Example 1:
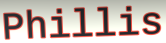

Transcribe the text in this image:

Phillis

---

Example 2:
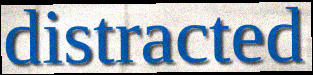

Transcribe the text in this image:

distracted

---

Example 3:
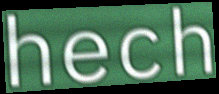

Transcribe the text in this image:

hech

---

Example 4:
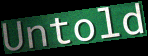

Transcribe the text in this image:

Untold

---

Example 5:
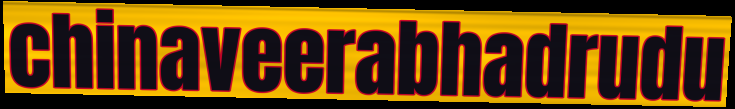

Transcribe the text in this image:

chinaveerabhadrudu